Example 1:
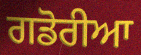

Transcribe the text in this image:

ਗਡੋਰੀਆ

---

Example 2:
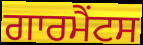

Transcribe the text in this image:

ਗਾਰਮੈਂਟਸ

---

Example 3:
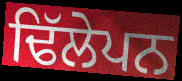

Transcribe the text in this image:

ਢਿੱਲੇਪਨ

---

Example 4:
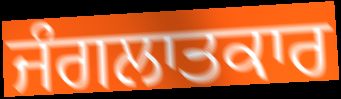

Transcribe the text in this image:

ਜੰਗਲਾਤਕਾਰ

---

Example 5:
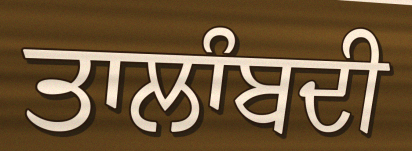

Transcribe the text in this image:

ਤਾਲਾੰਬਦੀ